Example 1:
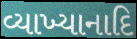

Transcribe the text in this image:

વ્યાખ્યાનાદિ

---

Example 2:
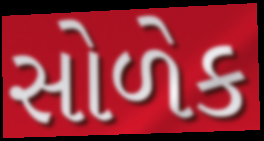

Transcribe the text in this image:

સોળેક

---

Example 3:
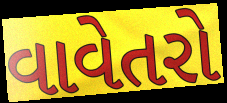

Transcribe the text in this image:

વાવેતરો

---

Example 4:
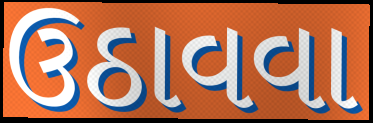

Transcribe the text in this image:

ઉઠાવવા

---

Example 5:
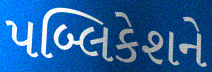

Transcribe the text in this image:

પબ્લિકેશને